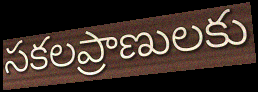
సకలప్రాణులకు